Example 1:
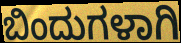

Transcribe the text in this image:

ಬಿಂದುಗಳಾಗಿ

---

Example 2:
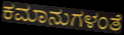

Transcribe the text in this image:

ಕಮಾನುಗಳಂತೆ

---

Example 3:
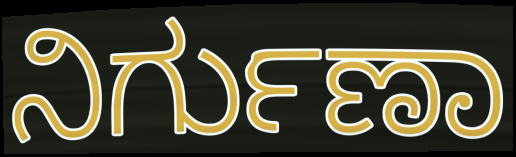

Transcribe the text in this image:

ನಿರ್ಗುಣಾ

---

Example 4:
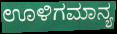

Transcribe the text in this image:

ಊಳಿಗಮಾನ್ಯ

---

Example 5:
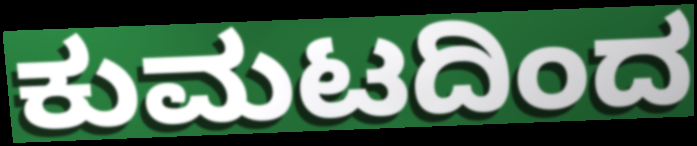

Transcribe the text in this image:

ಕುಮಟದಿಂದ